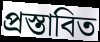
প্রস্তাবিত